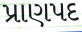
પ્રાણપદ